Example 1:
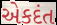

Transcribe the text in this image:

એકદંત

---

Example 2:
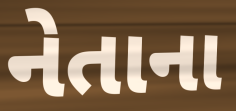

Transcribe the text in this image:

નેતાના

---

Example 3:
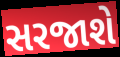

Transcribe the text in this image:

સરજાશે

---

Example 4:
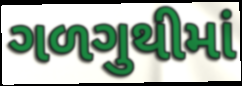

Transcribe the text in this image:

ગળગુથીમાં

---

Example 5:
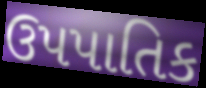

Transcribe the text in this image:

ઉપપાતિક